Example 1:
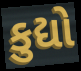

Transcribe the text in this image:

કુદ્યો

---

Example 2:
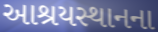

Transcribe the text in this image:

આશ્રયસ્થાનના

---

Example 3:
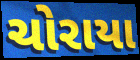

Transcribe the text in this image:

ચોરાયા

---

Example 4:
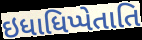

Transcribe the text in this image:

ઇધાધિપ્પેતાતિ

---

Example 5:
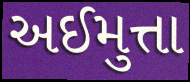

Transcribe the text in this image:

અઈમુત્તા